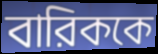
বারিককে